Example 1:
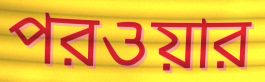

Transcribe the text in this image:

পরওয়ার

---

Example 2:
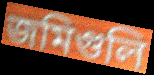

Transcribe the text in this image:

জমিগুলি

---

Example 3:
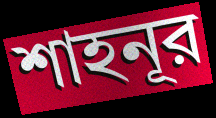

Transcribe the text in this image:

শাহনূর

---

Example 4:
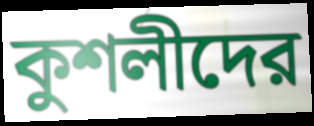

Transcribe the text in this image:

কুশলীদের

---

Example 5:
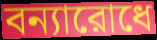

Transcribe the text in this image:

বন্যারোধে